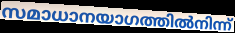
സമാധാനയാഗത്തിൽനിന്ന്